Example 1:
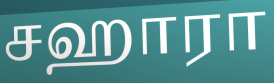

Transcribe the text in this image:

சஹாரா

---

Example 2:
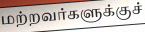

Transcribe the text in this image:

மற்றவர்களுக்குச்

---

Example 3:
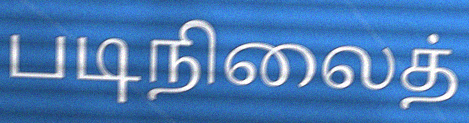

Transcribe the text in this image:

படிநிலைத்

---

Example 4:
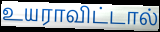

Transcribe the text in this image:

உயராவிட்டால்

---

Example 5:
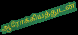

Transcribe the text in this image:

ஆரோக்கியத்துடன்